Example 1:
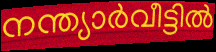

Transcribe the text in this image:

നന്ത്യാർവീട്ടിൽ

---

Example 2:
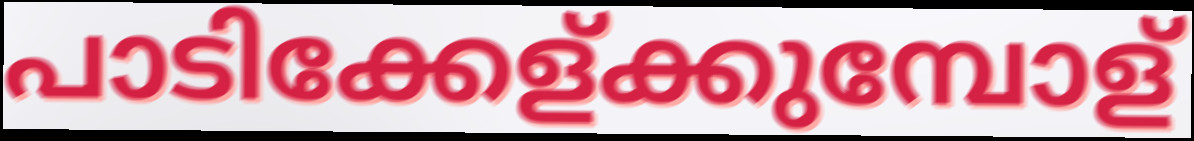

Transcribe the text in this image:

പാടിക്കേള്ക്കുമ്പോള്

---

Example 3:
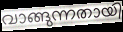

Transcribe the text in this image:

വാങ്ങുന്നതായി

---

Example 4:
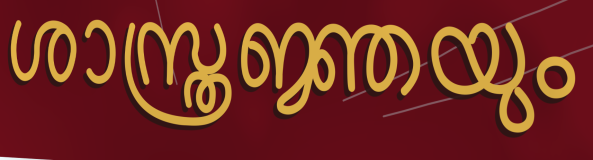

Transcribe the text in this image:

ശാസ്ത്രജ്ഞയും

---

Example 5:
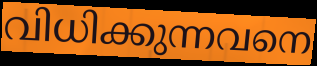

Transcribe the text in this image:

വിധിക്കുന്നവനെ